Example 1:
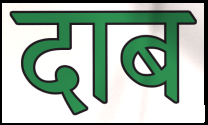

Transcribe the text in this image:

दाब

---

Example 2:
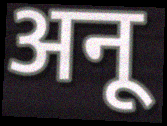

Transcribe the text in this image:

अनू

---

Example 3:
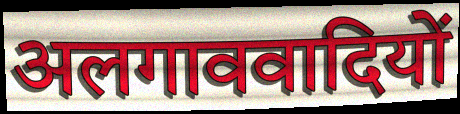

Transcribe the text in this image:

अलगाववादियों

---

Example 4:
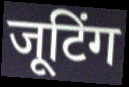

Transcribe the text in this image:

जूटिंग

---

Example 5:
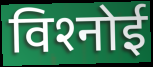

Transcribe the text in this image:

विश्नोई